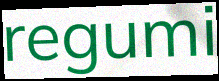
regumi